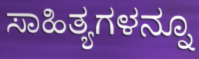
ಸಾಹಿತ್ಯಗಳನ್ನೂ